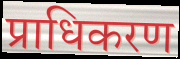
प्राधिकरण